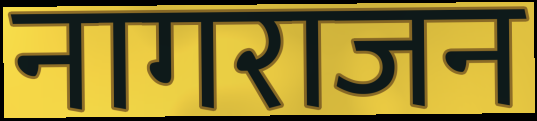
नागराजन